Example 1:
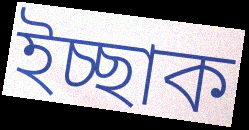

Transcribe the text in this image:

ইচ্ছাক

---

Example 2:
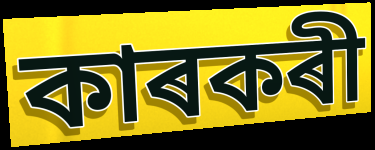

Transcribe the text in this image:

কাৰকৰী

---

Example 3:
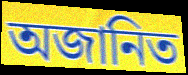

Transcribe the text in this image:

অজানিত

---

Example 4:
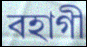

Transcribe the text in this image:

বহাগী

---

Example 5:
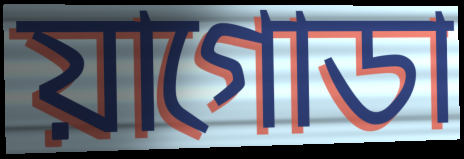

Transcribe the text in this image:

য়াগোডা